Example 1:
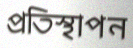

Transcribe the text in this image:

প্ৰতিস্থাপন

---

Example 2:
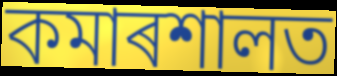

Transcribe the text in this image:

কমাৰশালত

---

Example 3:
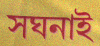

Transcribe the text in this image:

সঘনাই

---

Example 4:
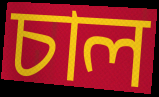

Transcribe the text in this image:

চাল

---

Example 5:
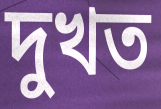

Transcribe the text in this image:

দুখত